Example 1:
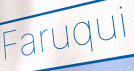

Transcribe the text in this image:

Faruqui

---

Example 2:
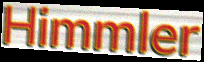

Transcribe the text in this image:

Himmler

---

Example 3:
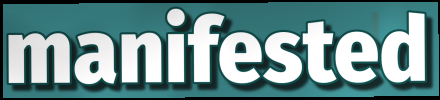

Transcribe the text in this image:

manifested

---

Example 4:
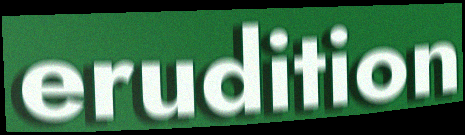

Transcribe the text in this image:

erudition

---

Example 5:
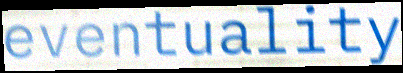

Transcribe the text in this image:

eventuality